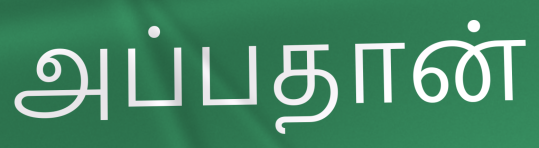
அப்பதான்